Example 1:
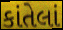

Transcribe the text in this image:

કાંતેલાં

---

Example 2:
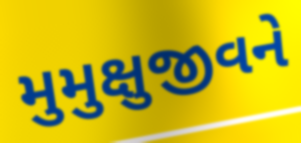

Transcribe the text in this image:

મુમુક્ષુજીવને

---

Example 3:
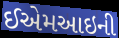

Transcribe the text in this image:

ઈએમઆઇની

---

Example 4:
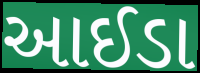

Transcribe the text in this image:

આઈડા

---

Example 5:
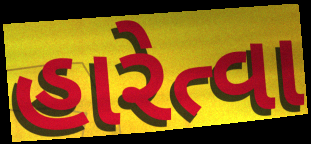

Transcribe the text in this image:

હારેત્વા